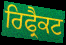
ਰਿਫ੍ਰੈਕਟ